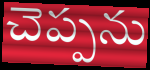
చెప్పను